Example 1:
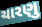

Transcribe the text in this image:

ચારણુ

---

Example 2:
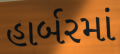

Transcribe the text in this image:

હાર્બરમાં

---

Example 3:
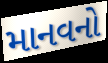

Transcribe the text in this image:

માનવનો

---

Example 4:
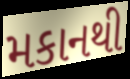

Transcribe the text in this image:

મકાનથી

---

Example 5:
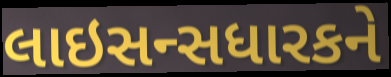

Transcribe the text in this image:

લાઇસન્સધારકને